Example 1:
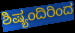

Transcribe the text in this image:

ಶಿಷ್ಯಂದಿರಿಂದ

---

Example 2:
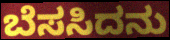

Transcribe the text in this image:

ಬೆಸಸಿದನು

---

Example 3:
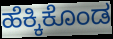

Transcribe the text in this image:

ಹೆಕ್ಕಿಕೊಂಡ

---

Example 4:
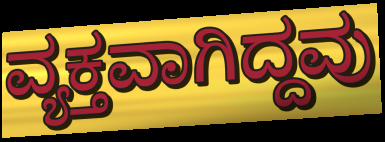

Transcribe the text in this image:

ವ್ಯಕ್ತವಾಗಿದ್ದವು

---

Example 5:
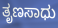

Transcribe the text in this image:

ತೃಣಸಾಧು